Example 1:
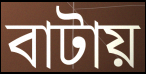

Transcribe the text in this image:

বাটায়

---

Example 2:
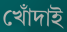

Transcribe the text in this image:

খোঁদাই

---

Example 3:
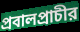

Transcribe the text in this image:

প্রবালপ্রাচীর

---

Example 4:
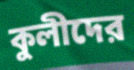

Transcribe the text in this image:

কুলীদের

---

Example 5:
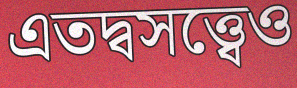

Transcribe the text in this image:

এতদ্বসত্ত্বেও